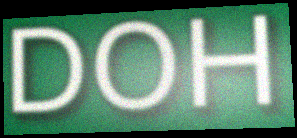
DOH